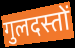
गुलदस्तों